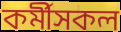
কৰ্মীসকল